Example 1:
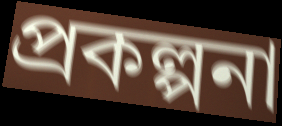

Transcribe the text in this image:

প্রকল্পনা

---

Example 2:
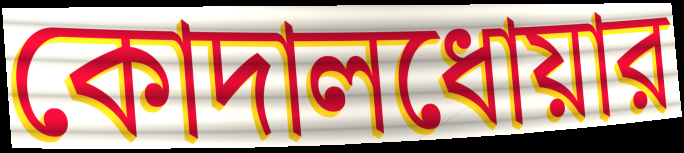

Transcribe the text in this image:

কোদালধোয়ার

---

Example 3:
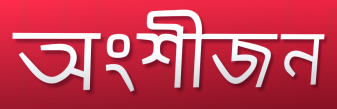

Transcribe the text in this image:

অংশীজন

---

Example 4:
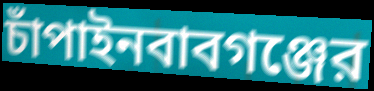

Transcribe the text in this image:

চাঁপাইনবাবগঞ্জের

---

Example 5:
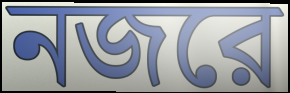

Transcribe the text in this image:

নজরে